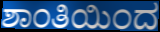
ಶಾಂತಿಯಿಂದ